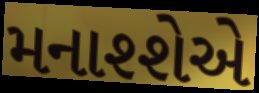
મનાશ્શેએ